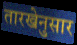
तारखेनुसार